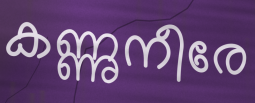
കണ്ണുനീരേ